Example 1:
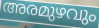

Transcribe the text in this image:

അരമുഴവും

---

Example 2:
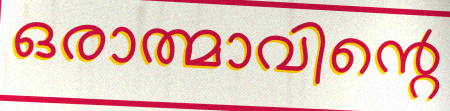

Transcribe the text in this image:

ഒരാത്മാവിന്റെ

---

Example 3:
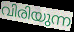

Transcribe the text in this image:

വിരിയുന്ന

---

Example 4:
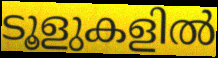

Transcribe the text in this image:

ടൂളുകളിൽ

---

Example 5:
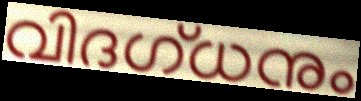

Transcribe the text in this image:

വിദഗ്ധനും